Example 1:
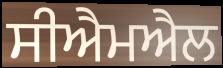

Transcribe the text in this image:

ਸੀਐਮਐਲ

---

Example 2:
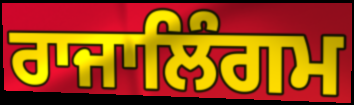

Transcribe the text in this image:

ਰਾਜਾਲਿੰਗਮ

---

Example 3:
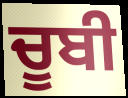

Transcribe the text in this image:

ਚੂਬੀ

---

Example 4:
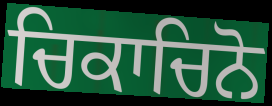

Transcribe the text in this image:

ਚਿਕਾਚਿਨੋ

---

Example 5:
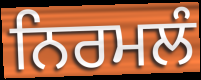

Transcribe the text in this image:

ਨਿਰਮਲੰ